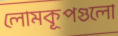
লোমকূপগুলো